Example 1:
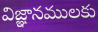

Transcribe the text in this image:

విజ్ఞానములకు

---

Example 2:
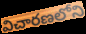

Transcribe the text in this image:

విచారణలోని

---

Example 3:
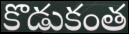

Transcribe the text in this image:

కొడుకంత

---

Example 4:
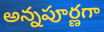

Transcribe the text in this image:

అన్నపూర్ణగా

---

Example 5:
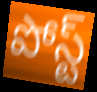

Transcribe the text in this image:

పోస్ట్